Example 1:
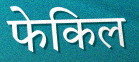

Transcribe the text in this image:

फेकिल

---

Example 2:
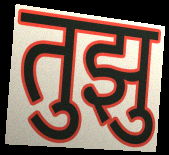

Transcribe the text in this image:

तुझु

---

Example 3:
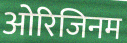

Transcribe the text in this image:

ओरिजिनम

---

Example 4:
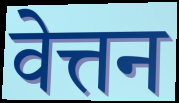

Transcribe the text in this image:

वेत्तन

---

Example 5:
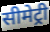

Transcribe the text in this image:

सीमेट्री